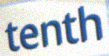
tenth